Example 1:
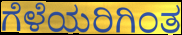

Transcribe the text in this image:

ಗೆಳೆಯರಿಗಿಂತ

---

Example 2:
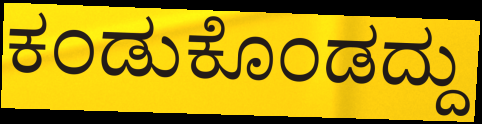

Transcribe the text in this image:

ಕಂಡುಕೊಂಡದ್ದು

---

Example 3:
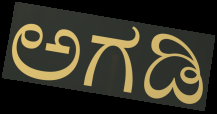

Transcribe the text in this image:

ಅಗಡಿ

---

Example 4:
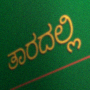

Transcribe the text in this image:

ತಾರದಲ್ಲಿ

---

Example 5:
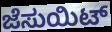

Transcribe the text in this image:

ಜೆಸುಯಿಟ್